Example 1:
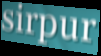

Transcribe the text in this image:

sirpur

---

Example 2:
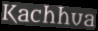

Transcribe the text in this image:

Kachhua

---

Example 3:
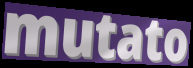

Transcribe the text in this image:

mutato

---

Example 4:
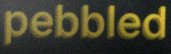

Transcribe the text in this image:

pebbled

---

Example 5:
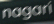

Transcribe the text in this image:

nagari